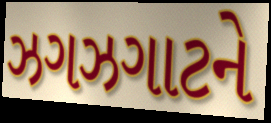
ઝગઝગાટને